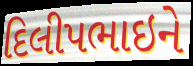
દિલીપભાઇને